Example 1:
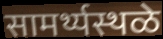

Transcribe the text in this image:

सामर्थ्यस्थळे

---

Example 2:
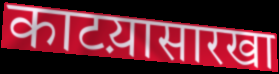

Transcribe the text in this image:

काटय़ासारखा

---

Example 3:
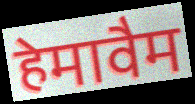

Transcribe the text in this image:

हेमावैम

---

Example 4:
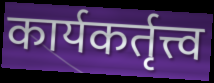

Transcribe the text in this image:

कार्यकर्तृत्त्व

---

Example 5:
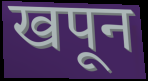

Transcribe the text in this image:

खपून